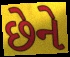
છેને